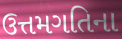
ઉત્તમગતિના